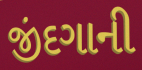
જીંદગાની